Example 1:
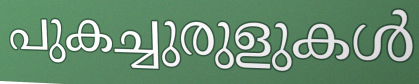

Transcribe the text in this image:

പുകച്ചുരുളുകൾ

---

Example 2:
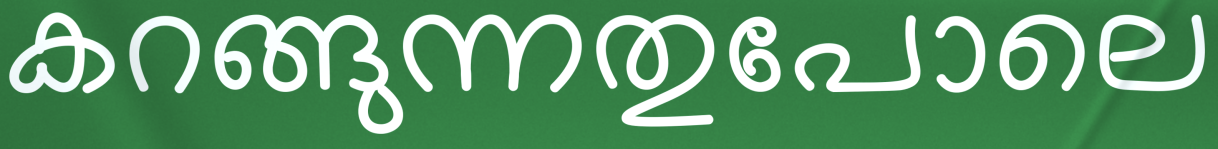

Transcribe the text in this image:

കറങ്ങുന്നതുപോലെ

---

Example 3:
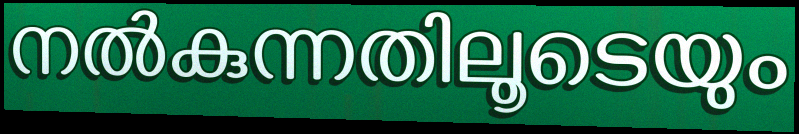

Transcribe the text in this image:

നൽകുന്നതിലൂടെയും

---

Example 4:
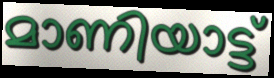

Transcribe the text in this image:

മാണിയാട്ട്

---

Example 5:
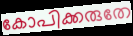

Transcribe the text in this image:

കോപിക്കരുതേ